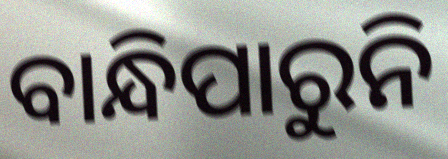
ବାନ୍ଧିପାରୁନି